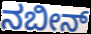
ನಬೀನ್